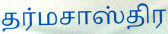
தர்மசாஸ்திர